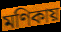
মণিকায়